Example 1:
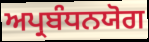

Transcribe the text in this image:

ਅਪ੍ਰਬੰਧਨਯੋਗ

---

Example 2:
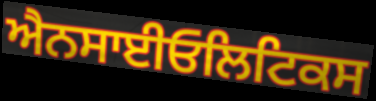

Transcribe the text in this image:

ਐਨਸਾਈਓਲਿਟਿਕਸ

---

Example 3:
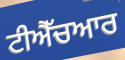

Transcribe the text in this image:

ਟੀਐੱਚਆਰ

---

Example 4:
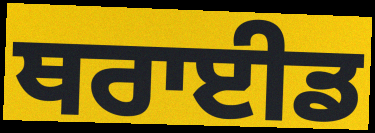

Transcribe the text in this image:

ਥਰਾਈਡ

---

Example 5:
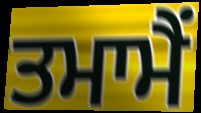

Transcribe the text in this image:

ਤਮਾਮੈਂ